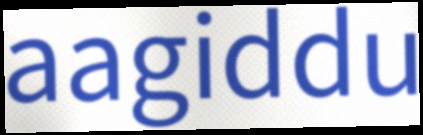
aagiddu